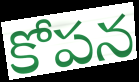
కోపన